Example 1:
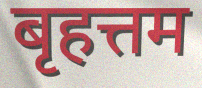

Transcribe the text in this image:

बृहत्तम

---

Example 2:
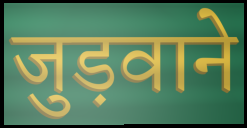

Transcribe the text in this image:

जुड़वाने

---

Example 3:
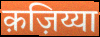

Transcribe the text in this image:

क़ज़िय्या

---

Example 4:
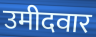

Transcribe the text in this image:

उमीदवार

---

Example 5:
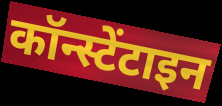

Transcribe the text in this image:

कॉन्स्टेंटाइन